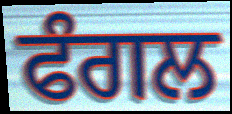
ਫੰਗਲ